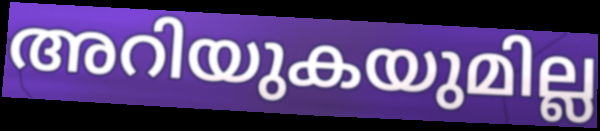
അറിയുകയുമില്ല